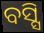
ବସ୍ସି